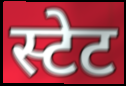
स्टेट